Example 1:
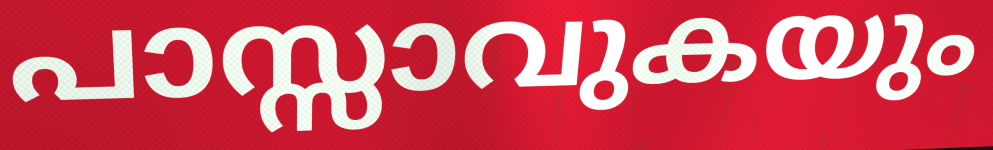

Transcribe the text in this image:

പാസ്സാവുകയും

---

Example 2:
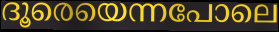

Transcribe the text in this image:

ദൂരെയെന്നപോലെ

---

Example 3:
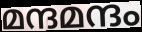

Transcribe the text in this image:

മന്ദമന്ദം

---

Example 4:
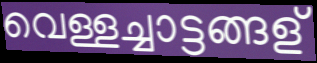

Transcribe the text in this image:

വെള്ളച്ചാട്ടങ്ങള്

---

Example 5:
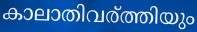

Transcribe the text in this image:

കാലാതിവര്ത്തിയും